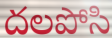
దలపోసి